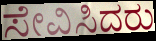
ಸೇವಿಸಿದರು